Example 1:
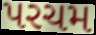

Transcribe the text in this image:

પરચમ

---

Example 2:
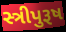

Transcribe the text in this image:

સ્ત્રીપુરૂષ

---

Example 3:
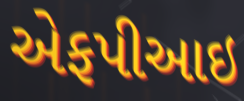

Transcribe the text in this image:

એફપીઆઇ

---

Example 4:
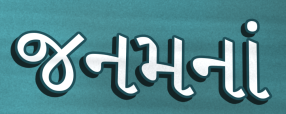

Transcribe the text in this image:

જનમનાં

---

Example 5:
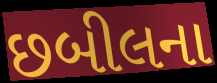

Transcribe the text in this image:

છબીલના